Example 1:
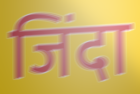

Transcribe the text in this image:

जिंदा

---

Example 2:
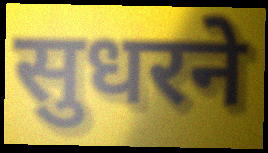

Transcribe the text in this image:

सुधरने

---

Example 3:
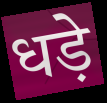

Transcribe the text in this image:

धड़े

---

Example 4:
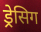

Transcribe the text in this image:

ड्रेसिग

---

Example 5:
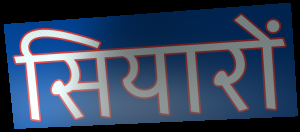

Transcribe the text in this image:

सियारों